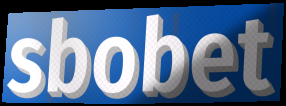
sbobet